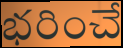
భరించే